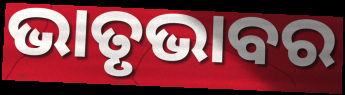
ଭାତୃଭାବର